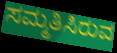
ಸಮ್ಮತಿಸಿರುವ